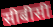
सीबीसी